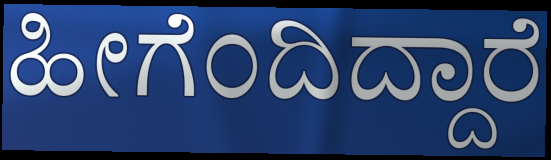
ಹೀಗೆಂದಿದ್ದಾರೆ